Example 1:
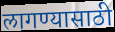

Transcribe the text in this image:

लागण्यासाठी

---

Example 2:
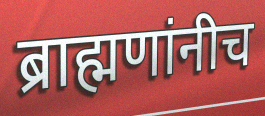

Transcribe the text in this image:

ब्राह्मणांनीच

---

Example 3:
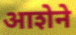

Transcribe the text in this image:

आशेने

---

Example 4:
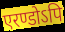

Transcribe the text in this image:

एरण्डोऽपि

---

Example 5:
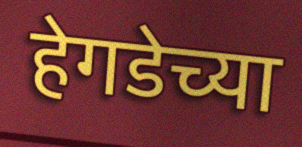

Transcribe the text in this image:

हेगडेच्या